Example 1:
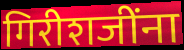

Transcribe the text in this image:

गिरीशजींना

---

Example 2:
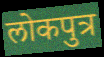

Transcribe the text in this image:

लोकपुत्र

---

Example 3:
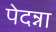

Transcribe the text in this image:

पेदन्ना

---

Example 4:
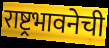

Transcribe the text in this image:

राष्ट्रभावनेची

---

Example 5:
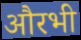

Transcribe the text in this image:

औरभी